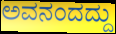
ಅವನಂದದ್ದು